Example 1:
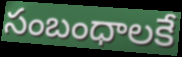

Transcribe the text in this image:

సంబంధాలకే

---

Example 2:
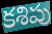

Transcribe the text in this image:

కశిపు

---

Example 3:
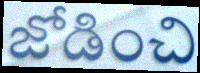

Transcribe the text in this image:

జోడించి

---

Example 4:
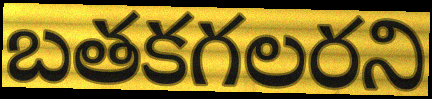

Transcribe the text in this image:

బతకగలరని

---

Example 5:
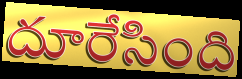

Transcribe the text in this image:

దూరేసింది